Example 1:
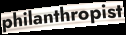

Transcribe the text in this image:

philanthropist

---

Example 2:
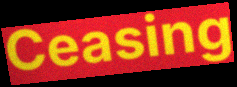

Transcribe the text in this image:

Ceasing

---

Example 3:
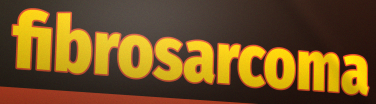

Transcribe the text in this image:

fibrosarcoma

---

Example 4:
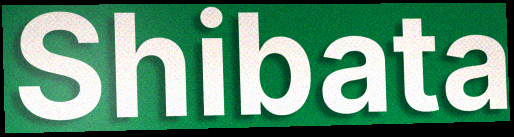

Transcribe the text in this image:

Shibata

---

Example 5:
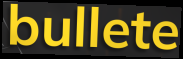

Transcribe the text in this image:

bullete